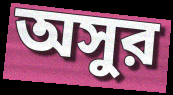
অসুর